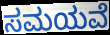
ಸಮಯವೆ